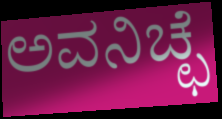
ಅವನಿಚ್ಛೆ